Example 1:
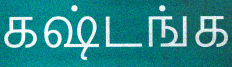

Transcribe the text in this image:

கஷ்டங்க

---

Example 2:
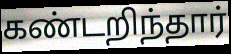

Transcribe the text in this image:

கண்டறிந்தார்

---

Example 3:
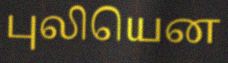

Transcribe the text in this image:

புலியென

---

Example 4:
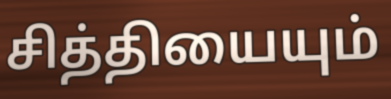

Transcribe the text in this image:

சித்தியையும்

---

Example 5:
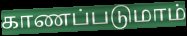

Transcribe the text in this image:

காணப்படுமாம்